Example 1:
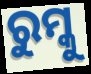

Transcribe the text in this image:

ରୁମ୍କୁ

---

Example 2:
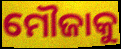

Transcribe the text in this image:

ମୌଜାକୁ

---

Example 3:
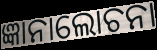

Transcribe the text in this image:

ଜ୍ଞାନାଲୋଚନା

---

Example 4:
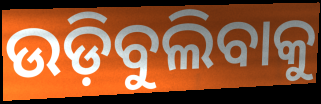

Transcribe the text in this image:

ଉଡ଼ିବୁଲିବାକୁ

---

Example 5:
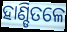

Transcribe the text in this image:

ହାଣ୍ଡିତଳେ